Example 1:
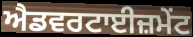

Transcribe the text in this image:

ਐਡਵਰਟਾਈਜ਼ਮੇਂਟ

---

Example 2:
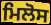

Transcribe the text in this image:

ਮਿਲੋਸ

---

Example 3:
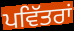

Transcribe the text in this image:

ਪਵਿੱਤਰਾਂ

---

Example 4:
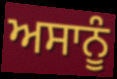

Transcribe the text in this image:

ਅਸਾਨੂੰ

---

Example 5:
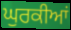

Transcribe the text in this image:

ਘੁਰਕੀਆਂ